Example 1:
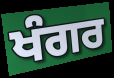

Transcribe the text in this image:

ਖੰਗਰ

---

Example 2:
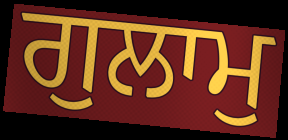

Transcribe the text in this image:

ਗੁਲਾਮੁ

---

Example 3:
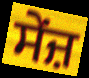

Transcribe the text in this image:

ਸੇਂਜ਼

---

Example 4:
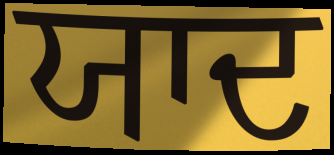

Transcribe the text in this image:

ਯਾਦ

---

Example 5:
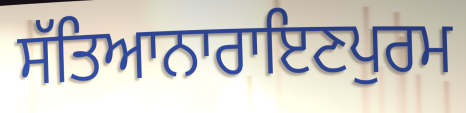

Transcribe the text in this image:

ਸੱਤਿਆਨਾਰਾਇਣਪੁਰਮ